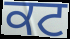
ਕਟ